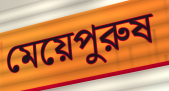
মেয়েপুরুষ